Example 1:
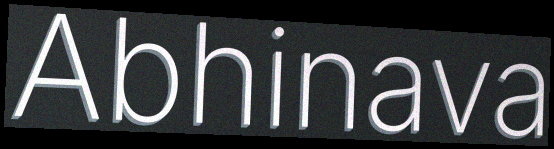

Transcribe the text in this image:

Abhinava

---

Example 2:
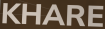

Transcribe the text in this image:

KHARE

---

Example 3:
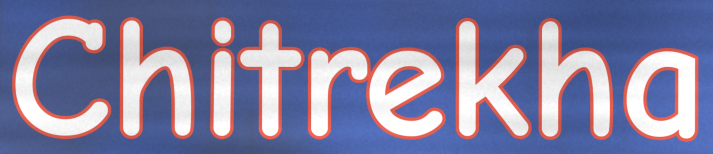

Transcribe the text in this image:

Chitrekha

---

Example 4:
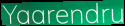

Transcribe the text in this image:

Yaarendru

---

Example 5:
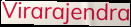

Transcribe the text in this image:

Virarajendra